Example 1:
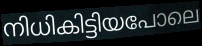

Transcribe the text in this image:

നിധികിട്ടിയപോലെ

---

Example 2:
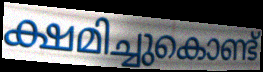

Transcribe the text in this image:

ക്ഷമിച്ചുകൊണ്ട്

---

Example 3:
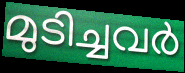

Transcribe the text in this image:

മുടിച്ചവർ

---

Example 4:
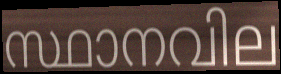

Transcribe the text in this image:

സ്ഥാനവില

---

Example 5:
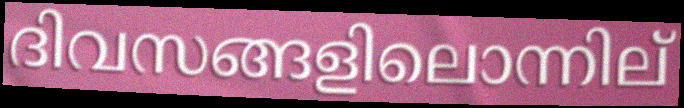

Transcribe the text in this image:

ദിവസങ്ങളിലൊന്നില്